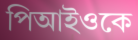
পিআইওকে